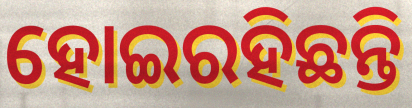
ହୋଇରହିଛନ୍ତି